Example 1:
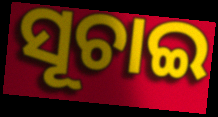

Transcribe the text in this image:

ସୂଚାଇ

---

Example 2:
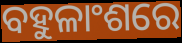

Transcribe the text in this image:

ବହୁଳାଂଶରେ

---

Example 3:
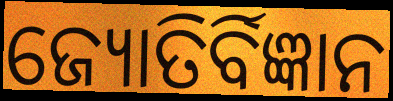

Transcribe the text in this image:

ଜ୍ୟୋତିର୍ବିଜ୍ଞାନ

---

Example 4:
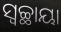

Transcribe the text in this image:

ସ୍ୱଚ୍ଛାୟା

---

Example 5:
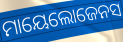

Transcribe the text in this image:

ମାୟେଲୋଜେନସ